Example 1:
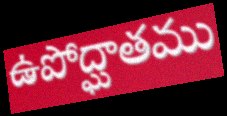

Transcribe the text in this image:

ఉపోద్ఘాతము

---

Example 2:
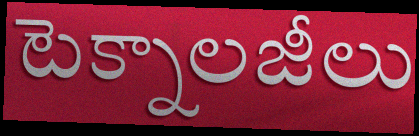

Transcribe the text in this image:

టెక్నాలజీలు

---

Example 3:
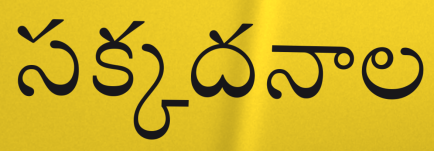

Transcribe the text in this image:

సక్కదనాల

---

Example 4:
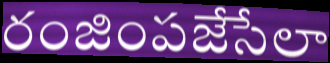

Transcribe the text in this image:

రంజింపజేసేలా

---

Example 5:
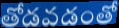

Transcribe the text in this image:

తోడవడంతో